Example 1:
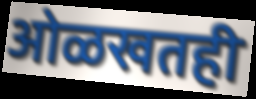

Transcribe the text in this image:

ओळखतही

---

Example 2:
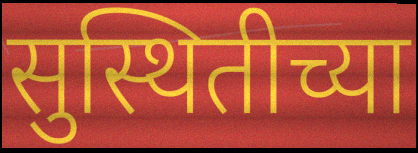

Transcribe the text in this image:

सुस्थितीच्या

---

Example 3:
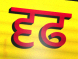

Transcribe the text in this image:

दृढ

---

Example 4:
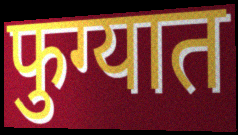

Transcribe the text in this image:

फुग्यात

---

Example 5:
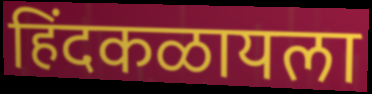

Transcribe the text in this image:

हिंदकळायला